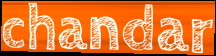
chandar